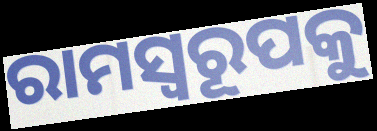
ରାମସ୍ୱରୂପକୁ